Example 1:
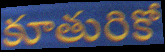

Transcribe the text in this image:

కూతురికో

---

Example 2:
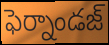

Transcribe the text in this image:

ఫెర్నాండజ్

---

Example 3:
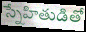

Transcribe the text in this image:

స్నేహితుడితో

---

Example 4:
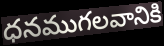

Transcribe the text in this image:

ధనముగలవానికి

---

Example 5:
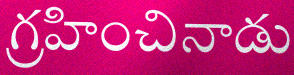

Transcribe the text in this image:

గ్రహించినాడు